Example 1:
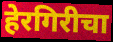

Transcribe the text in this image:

हेरगिरीचा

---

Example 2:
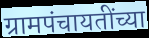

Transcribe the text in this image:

ग्रामपंचायतींच्या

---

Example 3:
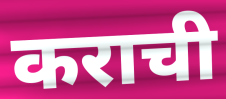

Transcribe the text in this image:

कराची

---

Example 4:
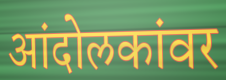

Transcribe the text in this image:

आंदोलकांवर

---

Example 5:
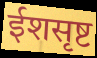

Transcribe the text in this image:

ईशसृष्ट